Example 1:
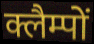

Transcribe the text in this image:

क्लैम्पों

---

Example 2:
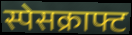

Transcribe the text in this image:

स्‍पेसक्राफ्ट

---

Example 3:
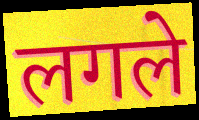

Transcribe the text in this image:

लगले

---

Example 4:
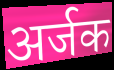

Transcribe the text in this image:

अर्जक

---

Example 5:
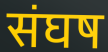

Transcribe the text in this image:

संघष